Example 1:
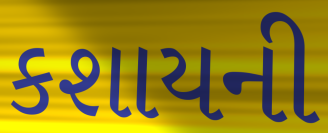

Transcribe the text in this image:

કશાયની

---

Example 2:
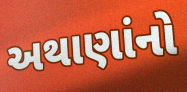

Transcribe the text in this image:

અથાણાંનો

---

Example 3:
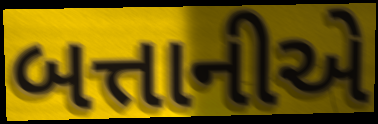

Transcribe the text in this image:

બત્તાનીએ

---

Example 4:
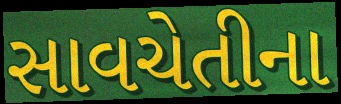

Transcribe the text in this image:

સાવચેતીના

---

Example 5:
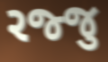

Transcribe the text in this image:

રજ્જુ